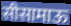
सीसामाऊ